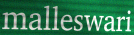
malleswari